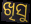
ଖିସୁ